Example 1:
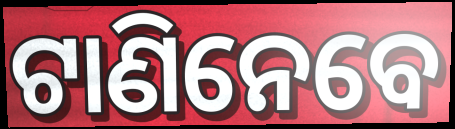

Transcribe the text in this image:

ଟାଣିନେବେ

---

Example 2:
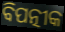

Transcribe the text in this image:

ବିପତ୍ନୀକ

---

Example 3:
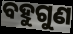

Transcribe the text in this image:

ବହୁଗୁଣ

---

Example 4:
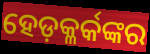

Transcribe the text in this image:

ହେଡ଼କ୍ଳର୍କଙ୍କର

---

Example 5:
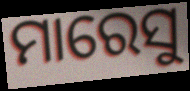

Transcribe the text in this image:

ମାରେସୁ